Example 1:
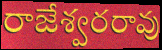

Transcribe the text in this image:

రాజేశ్వరరావు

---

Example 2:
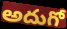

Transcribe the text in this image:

అదుగో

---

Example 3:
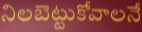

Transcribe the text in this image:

నిలబెట్టుకోవాలనే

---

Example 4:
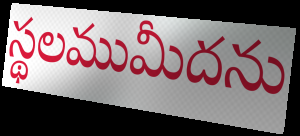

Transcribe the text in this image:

స్థలముమీదను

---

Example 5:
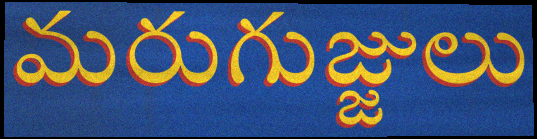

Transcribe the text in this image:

మరుగుజ్జులు